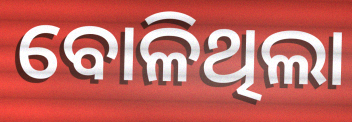
ବୋଳିଥିଲା